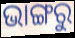
ଭାଙ୍ଗରୁ